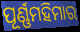
ପୂର୍ଣ୍ଣମହିମାର